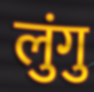
लुंगु